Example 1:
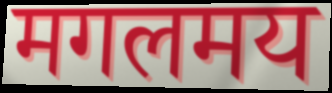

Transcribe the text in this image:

मगलमय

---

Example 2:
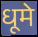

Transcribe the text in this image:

धूमे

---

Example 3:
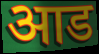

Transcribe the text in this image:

आड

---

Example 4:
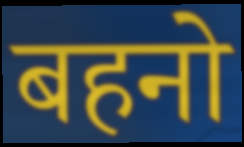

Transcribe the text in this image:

बहनो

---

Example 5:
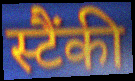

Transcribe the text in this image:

स्टैंकी